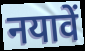
नयावें